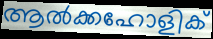
ആൽക്കഹോളിക്